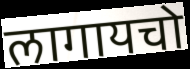
लागायचो